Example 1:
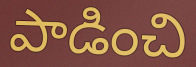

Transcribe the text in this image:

పాడించి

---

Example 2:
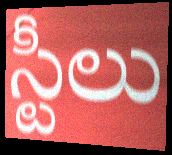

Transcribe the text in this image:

స్టీలు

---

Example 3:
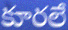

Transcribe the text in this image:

కూరలే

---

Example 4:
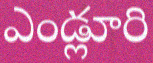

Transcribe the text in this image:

ఎండ్లూరి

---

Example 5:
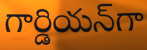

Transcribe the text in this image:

గార్డియన్‌గా